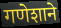
गणेशाने